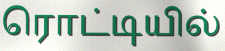
ரொட்டியில்